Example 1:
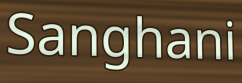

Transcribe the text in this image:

Sanghani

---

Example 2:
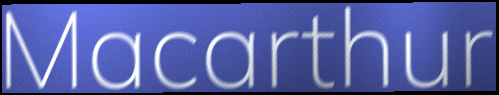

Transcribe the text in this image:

Macarthur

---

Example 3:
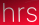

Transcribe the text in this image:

hrs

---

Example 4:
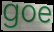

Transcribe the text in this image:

goe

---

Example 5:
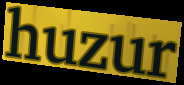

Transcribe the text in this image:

huzur